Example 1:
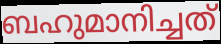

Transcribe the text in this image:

ബഹുമാനിച്ചത്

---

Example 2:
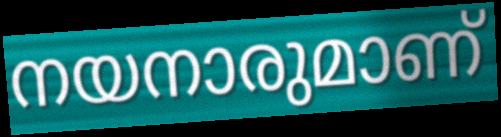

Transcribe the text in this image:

നയനാരുമാണ്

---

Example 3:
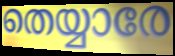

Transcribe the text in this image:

തെയ്യാരേ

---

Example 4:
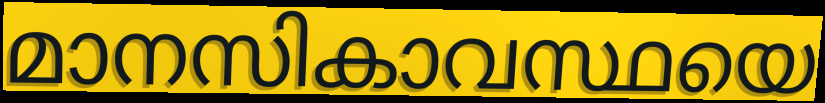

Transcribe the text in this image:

മാനസികാവസ്ഥയെ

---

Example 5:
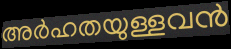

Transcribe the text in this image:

അർഹതയുള്ളവൻ